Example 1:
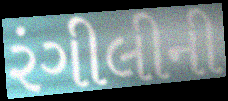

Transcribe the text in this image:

રંગીલીની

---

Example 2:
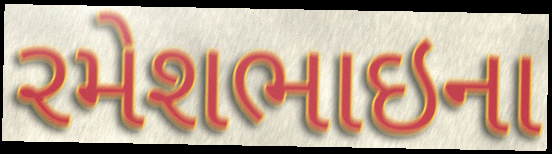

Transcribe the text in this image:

રમેશભાઇના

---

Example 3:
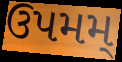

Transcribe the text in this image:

ઉપમમ્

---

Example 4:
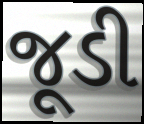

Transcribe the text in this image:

જૂડી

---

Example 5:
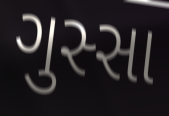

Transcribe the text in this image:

ગુસ્સા